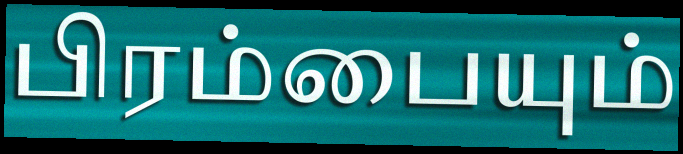
பிரம்பையும்